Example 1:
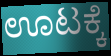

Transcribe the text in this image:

ಊಟಕ್ಕೆ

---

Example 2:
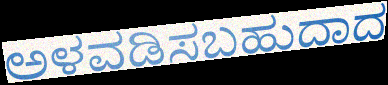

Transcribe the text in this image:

ಅಳವಡಿಸಬಹುದಾದ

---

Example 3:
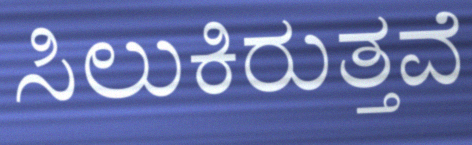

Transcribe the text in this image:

ಸಿಲುಕಿರುತ್ತವೆ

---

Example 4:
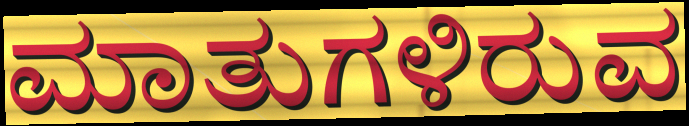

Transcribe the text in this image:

ಮಾತುಗಳಿರುವ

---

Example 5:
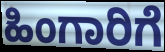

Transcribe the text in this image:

ಹಿಂಗಾರಿಗೆ